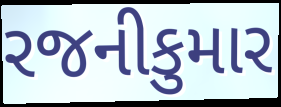
રજનીકુમાર